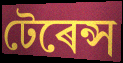
টেৰেন্স